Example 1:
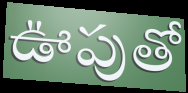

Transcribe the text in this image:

ఊపుతో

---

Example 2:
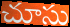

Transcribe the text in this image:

చూసు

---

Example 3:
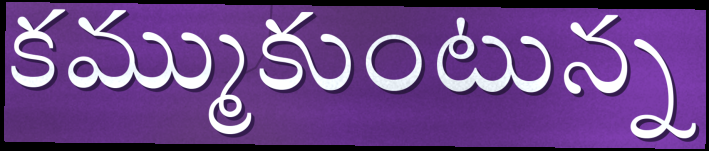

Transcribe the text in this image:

కమ్ముకుంటున్న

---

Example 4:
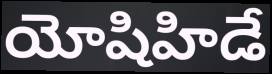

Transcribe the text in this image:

యోషిహిడే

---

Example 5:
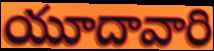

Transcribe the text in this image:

యూదావారి